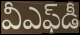
వీఎఫ్‌డీ